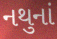
નથુનાં